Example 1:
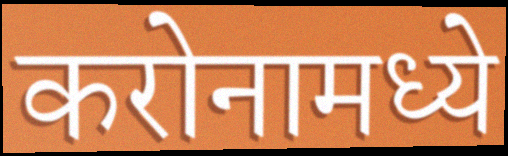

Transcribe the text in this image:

करोनामध्ये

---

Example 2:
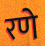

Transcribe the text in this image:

रणे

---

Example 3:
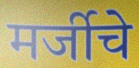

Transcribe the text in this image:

मर्जीचे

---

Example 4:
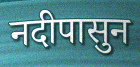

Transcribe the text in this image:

नदीपासुन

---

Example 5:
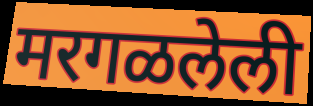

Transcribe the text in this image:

मरगळलेली